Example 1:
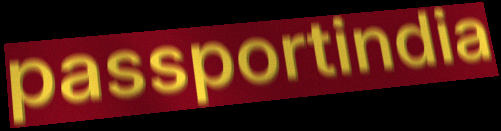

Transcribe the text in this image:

passportindia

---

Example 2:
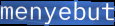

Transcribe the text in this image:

menyebut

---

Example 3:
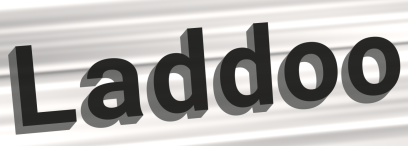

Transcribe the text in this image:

Laddoo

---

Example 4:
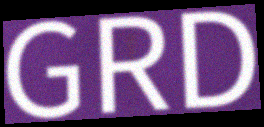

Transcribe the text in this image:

GRD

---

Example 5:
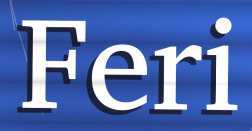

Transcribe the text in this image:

Feri